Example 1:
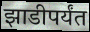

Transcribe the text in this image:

झाडीपर्यंत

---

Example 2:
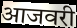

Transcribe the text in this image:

आजवरी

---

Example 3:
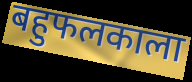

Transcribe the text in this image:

बहुफलकाला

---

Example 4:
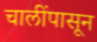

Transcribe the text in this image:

चालींपासून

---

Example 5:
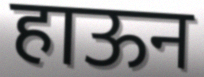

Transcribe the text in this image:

हाऊन